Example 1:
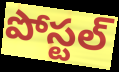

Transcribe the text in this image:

పోస్టల్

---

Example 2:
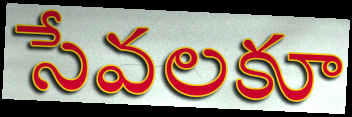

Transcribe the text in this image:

సేవలకూ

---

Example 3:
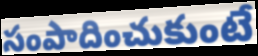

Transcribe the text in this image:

సంపాదించుకుంటే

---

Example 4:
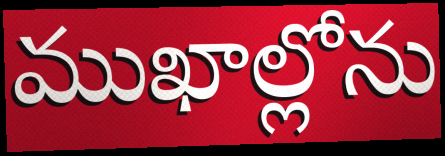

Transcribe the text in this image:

ముఖాల్లోను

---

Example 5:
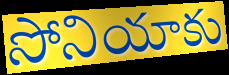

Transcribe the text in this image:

సోనియాకు